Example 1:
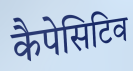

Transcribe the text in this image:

कैपेसिटिव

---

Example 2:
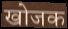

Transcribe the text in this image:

खोजक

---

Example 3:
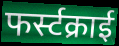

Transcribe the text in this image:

फर्स्टक्राई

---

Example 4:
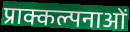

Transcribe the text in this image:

प्राक्कल्पनाओं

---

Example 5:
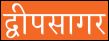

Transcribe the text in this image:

द्वीपसागर